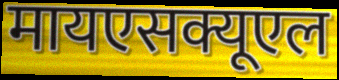
मायएसक्यूएल